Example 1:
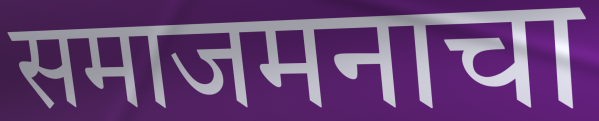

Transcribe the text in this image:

समाजमनाचा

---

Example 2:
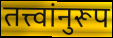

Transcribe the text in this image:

तत्त्वांनुरूप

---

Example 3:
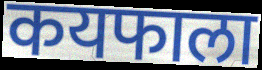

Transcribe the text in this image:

कयफाला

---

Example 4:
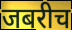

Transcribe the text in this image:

जबरीच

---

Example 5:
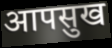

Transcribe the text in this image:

आपसुख